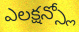
ఎలక్షన్స్లో